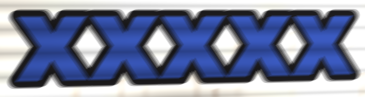
XXXXX